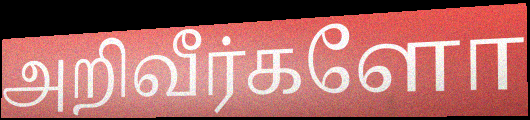
அறிவீர்களோ